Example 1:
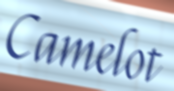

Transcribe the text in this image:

Camelot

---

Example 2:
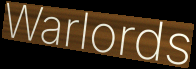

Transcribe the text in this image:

Warlords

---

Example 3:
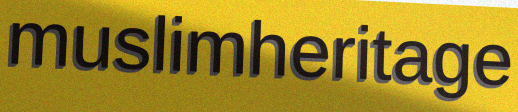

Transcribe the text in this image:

muslimheritage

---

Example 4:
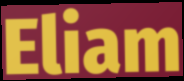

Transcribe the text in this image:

Eliam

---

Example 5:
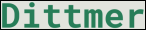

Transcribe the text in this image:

Dittmer